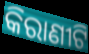
କିରାଣୀଟି